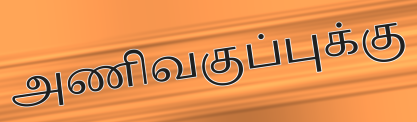
அணிவகுப்புக்கு